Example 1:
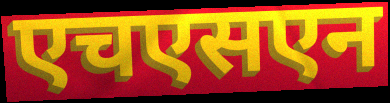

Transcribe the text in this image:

एचएसएन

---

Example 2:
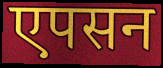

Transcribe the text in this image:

एपसन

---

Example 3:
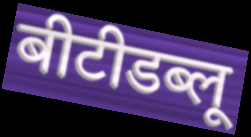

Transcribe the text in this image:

बीटीडब्लू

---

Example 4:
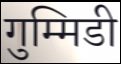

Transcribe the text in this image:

गुम्मिडी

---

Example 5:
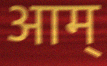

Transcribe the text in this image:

आम्